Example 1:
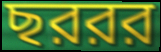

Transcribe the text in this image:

ছররর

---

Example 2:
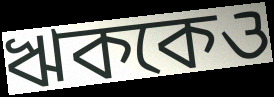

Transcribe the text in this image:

ঋককেও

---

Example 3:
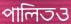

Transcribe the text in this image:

পালিতও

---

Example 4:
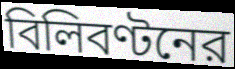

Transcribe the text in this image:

বিলিবণ্টনের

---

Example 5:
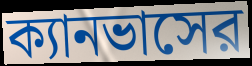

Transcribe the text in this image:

ক্যানভাসের